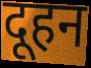
दूहन